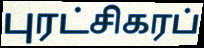
புரட்சிகரப்